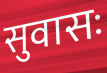
सुवासः